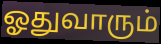
ஓதுவாரும்